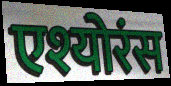
एश्योरंस